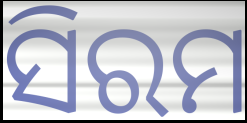
ସିରମ